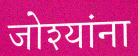
जोश्यांना